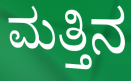
ಮತ್ತಿನ